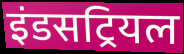
इंडसट्रियल